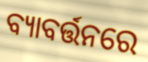
ବ୍ୟାବର୍ତ୍ତନରେ